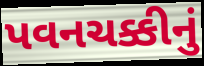
પવનચક્કીનું